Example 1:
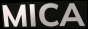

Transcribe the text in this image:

MICA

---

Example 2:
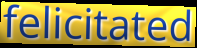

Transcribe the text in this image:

felicitated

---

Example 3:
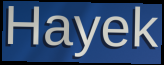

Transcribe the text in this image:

Hayek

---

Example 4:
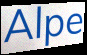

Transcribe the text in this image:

Alpe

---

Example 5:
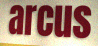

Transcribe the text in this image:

arcus